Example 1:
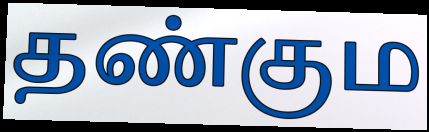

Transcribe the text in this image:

தண்கும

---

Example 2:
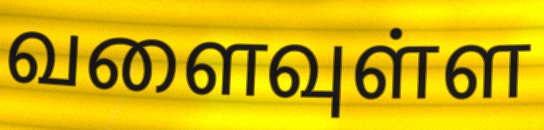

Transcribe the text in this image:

வளைவுள்ள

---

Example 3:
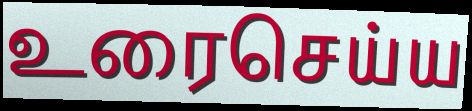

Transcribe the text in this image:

உரைசெய்ய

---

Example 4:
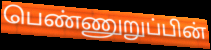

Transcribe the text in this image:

பெண்ணுறுப்பின்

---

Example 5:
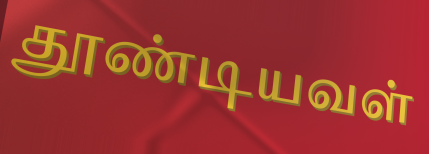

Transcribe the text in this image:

தூண்டியவள்